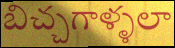
బిచ్చగాళ్ళలా